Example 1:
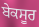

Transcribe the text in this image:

ਬੇਕਸੂਰ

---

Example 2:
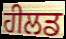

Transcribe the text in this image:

ਹੀਲਡ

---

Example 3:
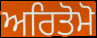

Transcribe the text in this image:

ਅਰਿਤੋਮੋ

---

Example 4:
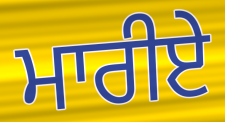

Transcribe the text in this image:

ਮਾਰੀਏ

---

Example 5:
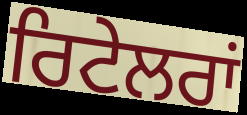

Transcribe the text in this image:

ਰਿਟੇਲਰਾਂ